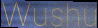
Wushu